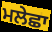
ਮਲੇਛਾ